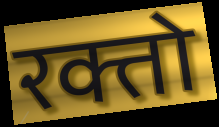
रक्तो